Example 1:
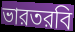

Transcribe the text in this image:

ভারতরবি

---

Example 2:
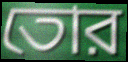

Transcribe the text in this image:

তোর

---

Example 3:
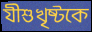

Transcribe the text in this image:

যীশুখৃষ্টকে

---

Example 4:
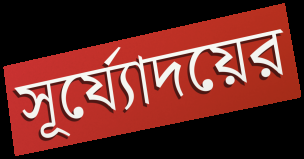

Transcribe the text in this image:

সূর্য্যোদয়ের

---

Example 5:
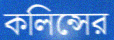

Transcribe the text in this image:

কলিন্সের